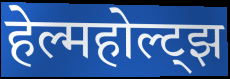
हेल्महोल्ट्झ